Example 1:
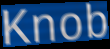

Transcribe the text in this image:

Knob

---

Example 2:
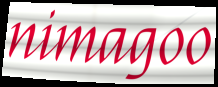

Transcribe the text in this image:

nimagoo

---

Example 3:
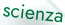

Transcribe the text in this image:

scienza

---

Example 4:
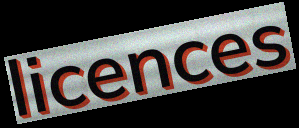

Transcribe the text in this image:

licences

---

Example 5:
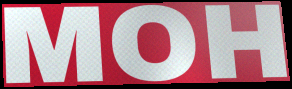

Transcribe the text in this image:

MOH